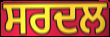
ਸਰਦਲ